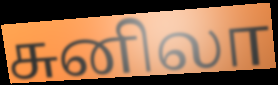
சுனிலா